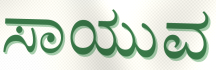
ಸಾಯುವ